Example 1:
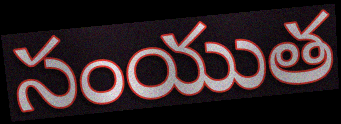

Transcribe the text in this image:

సంయుత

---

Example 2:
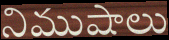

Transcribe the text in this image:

నిముషాలు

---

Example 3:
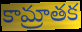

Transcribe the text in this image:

కామ్రాతక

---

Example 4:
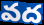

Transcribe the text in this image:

వద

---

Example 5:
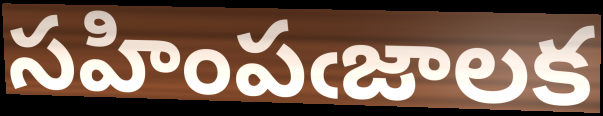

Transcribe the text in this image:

సహింపఁజాలక